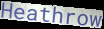
Heathrow